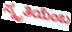
ಸ್ಮೃತಿಯೆಂಬ